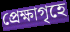
প্রেক্ষাগৃহে